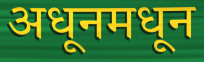
अधूनमधून